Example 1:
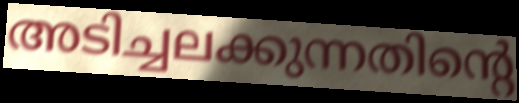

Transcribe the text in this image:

അടിച്ചലക്കുന്നതിന്റെ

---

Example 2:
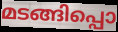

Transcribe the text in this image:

മടങ്ങിപ്പൊ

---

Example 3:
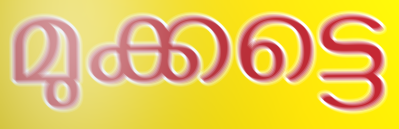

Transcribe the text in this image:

മുക്കട്ടെ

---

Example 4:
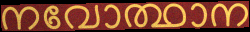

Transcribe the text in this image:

നവോത്ഥാന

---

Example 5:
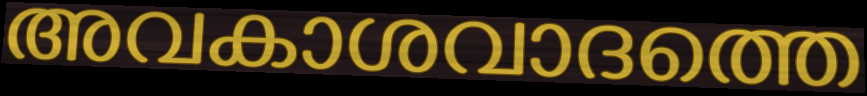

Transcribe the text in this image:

അവകാശവാദത്തെ